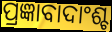
ପ୍ରଜ୍ଞାବାଦାଂଶ୍ଚ